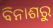
ବିନାଶରୁ